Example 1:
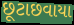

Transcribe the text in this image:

છૂટાછવાયા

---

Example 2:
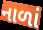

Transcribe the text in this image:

નાળાં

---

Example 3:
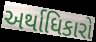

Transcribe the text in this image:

અર્થાધિકારો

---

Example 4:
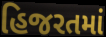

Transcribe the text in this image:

હિજરતમાં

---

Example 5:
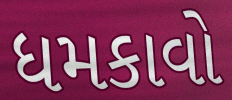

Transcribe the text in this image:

ધમકાવો